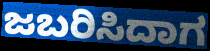
ಜಬರಿಸಿದಾಗ